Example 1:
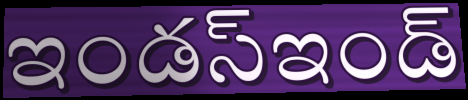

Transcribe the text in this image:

ఇండస్ఇండ్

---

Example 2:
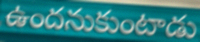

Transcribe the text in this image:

ఉందనుకుంటాడు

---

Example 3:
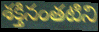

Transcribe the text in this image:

శక్తినంతటిని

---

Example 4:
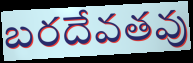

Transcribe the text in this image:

బరదేవతవు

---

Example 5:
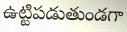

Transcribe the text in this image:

ఉట్టిపడుతుండగా